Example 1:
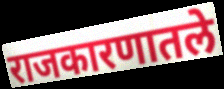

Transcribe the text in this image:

राजकारणातले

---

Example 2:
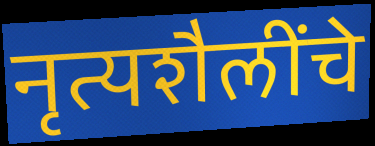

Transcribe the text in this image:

नृत्यशैलींचे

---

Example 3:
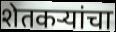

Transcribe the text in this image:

शेतकऱ्यांचा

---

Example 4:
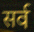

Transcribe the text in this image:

सर्व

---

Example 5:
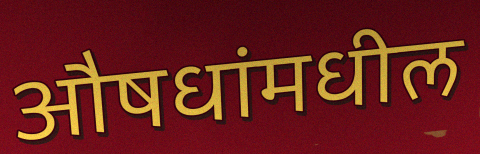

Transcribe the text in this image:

औषधांमधील